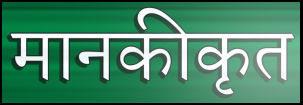
मानकीकृत